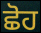
ਛੋਹ